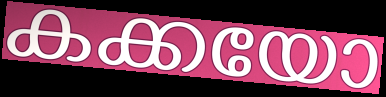
കക്കയോ